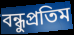
বন্ধুপ্রতিম